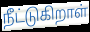
நீட்டுகிறாள்